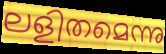
ലളിതമെന്നു